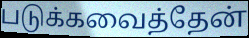
படுக்கவைத்தேன்